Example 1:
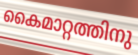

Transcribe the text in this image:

കൈമാറ്റത്തിനു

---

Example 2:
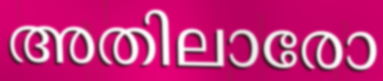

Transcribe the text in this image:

അതിലാരോ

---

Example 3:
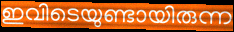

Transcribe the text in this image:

ഇവിടെയുണ്ടായിരുന്ന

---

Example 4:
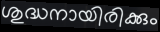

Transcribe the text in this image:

ശുദ്ധനായിരിക്കും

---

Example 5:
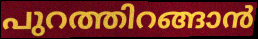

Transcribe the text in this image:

പുറത്തിറങ്ങാൻ